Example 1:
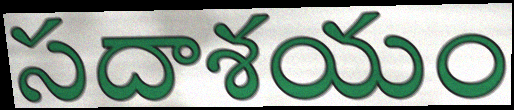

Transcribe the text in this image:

సదాశయం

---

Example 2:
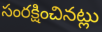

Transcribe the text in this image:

సంరక్షించినట్లు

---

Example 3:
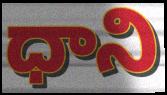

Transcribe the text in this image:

ధాని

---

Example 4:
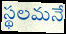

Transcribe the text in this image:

స్థలమనే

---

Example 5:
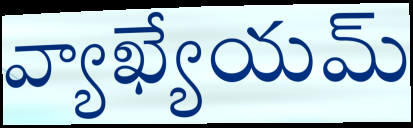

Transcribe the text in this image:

వ్యాఖ్యేయమ్